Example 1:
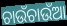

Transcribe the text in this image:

ଚାଉଁଚାଉଁଆ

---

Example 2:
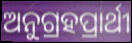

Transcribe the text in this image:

ଅନୁଗ୍ରହପ୍ରାର୍ଥୀ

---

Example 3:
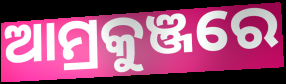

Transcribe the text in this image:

ଆମ୍ରକୁଞ୍ଜରେ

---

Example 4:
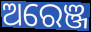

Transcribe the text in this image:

ଅରେଞ୍ଜ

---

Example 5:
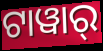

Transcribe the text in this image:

ଟାୱାର୍